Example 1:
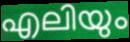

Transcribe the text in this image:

എലിയും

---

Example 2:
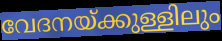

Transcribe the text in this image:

വേദനയ്ക്കുള്ളിലും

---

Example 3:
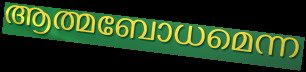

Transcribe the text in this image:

ആത്മബോധമെന്ന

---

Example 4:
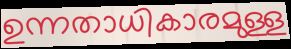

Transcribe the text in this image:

ഉന്നതാധികാരമുള്ള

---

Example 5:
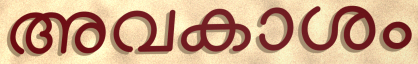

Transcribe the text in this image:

അവകാശം